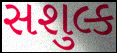
સશુલ્ક